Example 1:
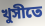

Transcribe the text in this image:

খুসীতে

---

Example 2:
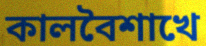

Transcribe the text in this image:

কালবৈশাখে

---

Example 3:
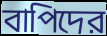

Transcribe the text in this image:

বাপিদের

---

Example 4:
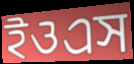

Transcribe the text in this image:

ইওএস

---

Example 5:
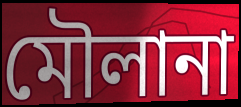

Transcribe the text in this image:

মৌলানা